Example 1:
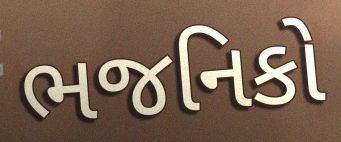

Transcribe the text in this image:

ભજનિકો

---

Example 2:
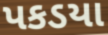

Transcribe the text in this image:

પકડયા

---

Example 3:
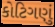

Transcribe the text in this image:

કોટિગણું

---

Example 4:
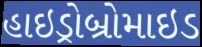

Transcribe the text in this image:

હાઇડ્રોબ્રોમાઇડ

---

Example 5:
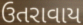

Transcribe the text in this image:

ઉતરાવાય